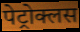
पेट्रोक्लस